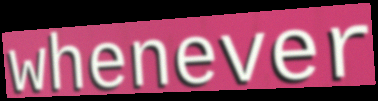
whenever